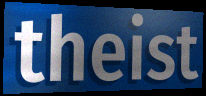
theist